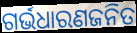
ଗର୍ଭଧାରଣଜନିତ